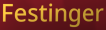
Festinger